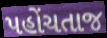
પહોંચતાજ